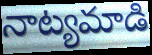
నాట్యమాడి